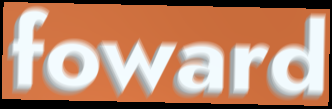
foward